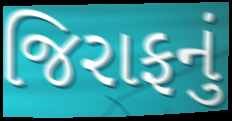
જિરાફનું